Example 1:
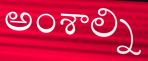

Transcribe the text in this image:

అంశాల్ని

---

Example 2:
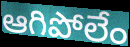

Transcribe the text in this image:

ఆగిపోలేం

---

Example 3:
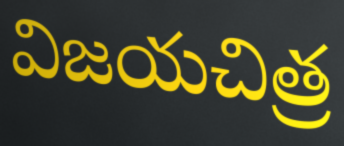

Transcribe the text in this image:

విజయచిత్ర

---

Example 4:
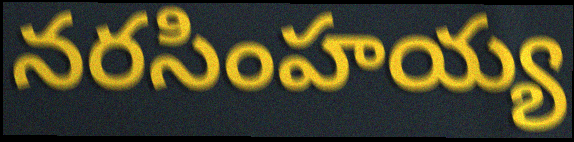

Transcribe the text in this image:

నరసింహయ్య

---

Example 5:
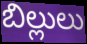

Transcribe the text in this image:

బిల్లులు